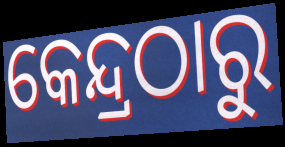
କେନ୍ଦ୍ରଠାରୁ